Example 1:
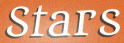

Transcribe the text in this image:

Stars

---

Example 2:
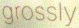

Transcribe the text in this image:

grossly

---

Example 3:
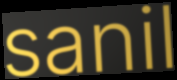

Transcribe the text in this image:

sanil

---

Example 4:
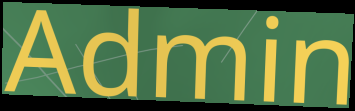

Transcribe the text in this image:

Admin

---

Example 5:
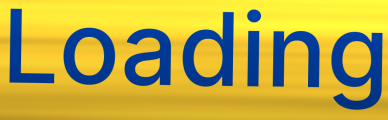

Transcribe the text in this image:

Loading